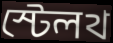
স্টেলথ